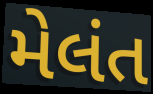
મેલંત